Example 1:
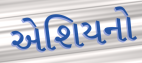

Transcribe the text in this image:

એશિયનો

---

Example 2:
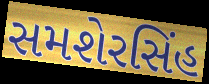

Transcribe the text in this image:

સમશેરસિંહ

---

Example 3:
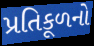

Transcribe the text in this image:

પ્રતિકૂળનો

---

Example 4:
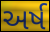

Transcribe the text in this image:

અર્ષ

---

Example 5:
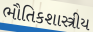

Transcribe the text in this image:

ભૌતિકશાસ્ત્રીય